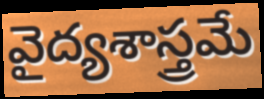
వైద్యశాస్త్రమే